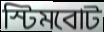
স্টিমবোট